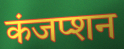
कंजप्शन